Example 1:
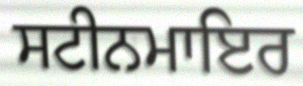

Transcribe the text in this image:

ਸਟੀਨਮਾਇਰ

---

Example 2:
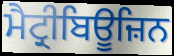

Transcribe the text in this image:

ਮੈਟ੍ਰੀਬਿਊਜ਼ਿਨ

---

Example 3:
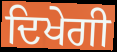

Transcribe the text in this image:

ਦਿਖੇਗੀ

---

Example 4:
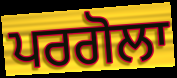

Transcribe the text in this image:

ਪਰਗੋਲਾ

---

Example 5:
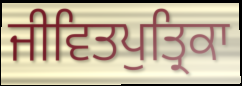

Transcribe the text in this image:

ਜੀਵਿਤਪੁਤ੍ਰਿਕਾ